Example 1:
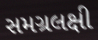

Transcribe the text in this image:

સમગ્રલક્ષી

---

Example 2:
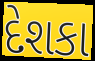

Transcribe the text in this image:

દેશકા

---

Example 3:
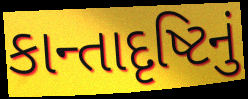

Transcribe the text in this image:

કાન્તાદૃષ્ટિનું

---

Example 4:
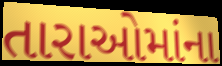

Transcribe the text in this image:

તારાઓમાંના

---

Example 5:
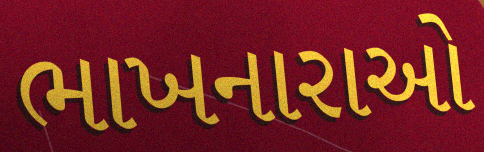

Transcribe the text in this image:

ભાખનારાઓ